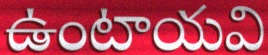
ఉంటాయవి